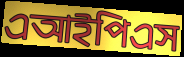
এআইপিএস